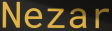
Nezar